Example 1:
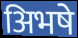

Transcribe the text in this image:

अिभषे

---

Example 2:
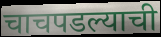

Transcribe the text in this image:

चाचपडल्याची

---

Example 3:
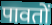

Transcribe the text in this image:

पावतों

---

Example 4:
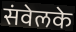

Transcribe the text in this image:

संवेलके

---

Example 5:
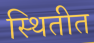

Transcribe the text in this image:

स्थितीत